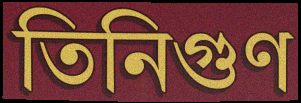
তিনিগুণ